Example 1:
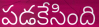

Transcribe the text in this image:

పడకేసింది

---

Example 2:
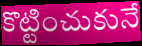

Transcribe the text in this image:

కొట్టించుకునే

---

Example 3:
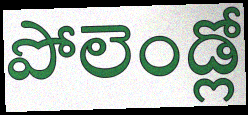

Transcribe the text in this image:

పోలెండ్లో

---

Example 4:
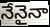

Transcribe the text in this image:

నేనైనా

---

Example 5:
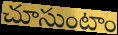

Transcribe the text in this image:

చూసుంటాం